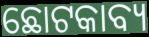
ଛୋଟକାବ୍ୟ